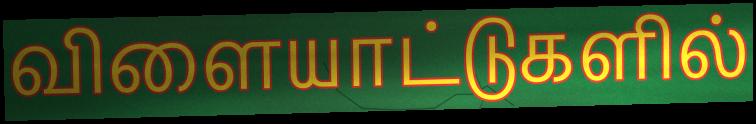
விளையாட்டுகளில்